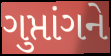
ગુપ્તાંગને